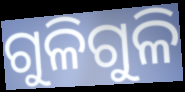
ଗୁଳିଗୁଳି